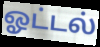
ஓட்டல்